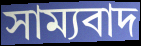
সাম্যবাদ